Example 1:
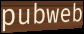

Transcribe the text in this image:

pubweb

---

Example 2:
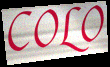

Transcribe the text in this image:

COLO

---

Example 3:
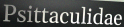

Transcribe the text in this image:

Psittaculidae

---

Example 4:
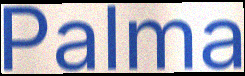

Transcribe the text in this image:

Palma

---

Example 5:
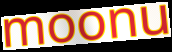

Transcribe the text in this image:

moonu